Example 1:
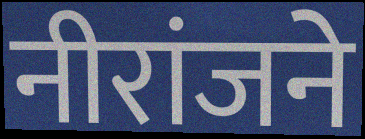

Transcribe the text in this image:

नीरांजने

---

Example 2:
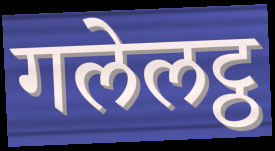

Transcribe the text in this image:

गलेलट्ठ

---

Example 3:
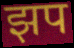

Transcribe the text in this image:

झप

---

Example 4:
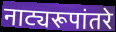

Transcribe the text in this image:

नाट्यरूपांतरे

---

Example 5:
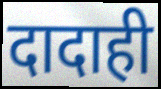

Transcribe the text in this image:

दादाही